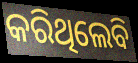
କରିଥିଲେବି